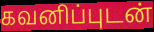
கவனிப்புடன்